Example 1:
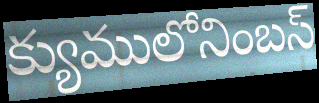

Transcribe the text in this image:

క్యుములోనింబస్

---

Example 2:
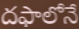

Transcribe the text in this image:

దఫాలోనే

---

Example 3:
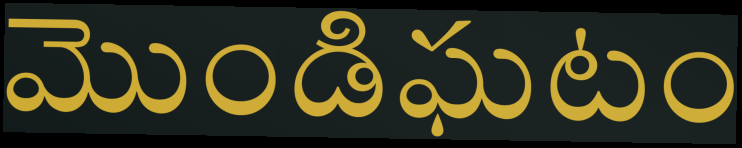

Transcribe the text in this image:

మొండిఘటం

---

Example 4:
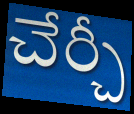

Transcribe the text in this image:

చేర్చీ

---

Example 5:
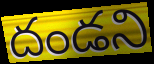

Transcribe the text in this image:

దండని